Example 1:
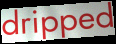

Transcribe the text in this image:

dripped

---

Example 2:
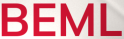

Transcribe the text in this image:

BEML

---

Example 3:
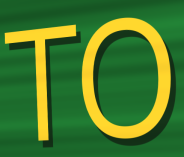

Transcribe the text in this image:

TO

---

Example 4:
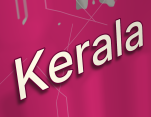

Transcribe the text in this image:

Kerala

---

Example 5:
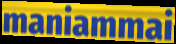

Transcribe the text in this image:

maniammai